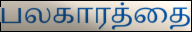
பலகாரத்தை